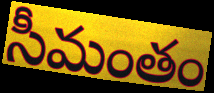
సీమంతం